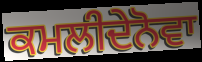
ਕਮਲੀਦੇਨੋਵਾ